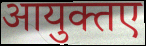
आयुक्तए